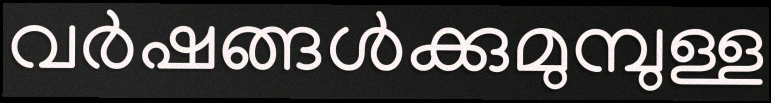
വർഷങ്ങൾക്കുമുമ്പുള്ള